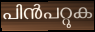
പിൻപറ്റുക